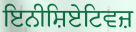
ਇਨੀਸ਼ਿਏਟਿਵਜ਼